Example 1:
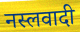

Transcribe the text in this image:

नस्लवादी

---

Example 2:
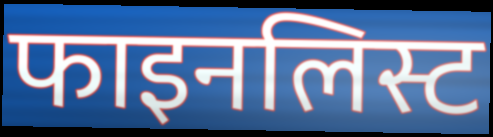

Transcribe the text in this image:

फाइनलिस्ट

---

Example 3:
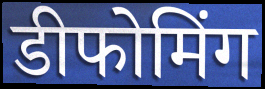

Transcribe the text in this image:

डीफोमिंग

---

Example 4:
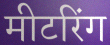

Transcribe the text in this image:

मीटरिंग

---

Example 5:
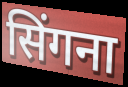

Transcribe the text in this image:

सिंगना